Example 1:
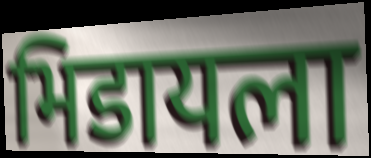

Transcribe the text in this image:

भिडायला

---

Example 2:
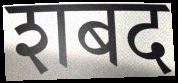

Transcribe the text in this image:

शबद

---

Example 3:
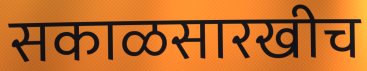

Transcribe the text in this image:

सकाळसारखीच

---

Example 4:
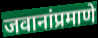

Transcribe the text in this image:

जवानांप्रमाणे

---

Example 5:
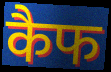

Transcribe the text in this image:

कैफ